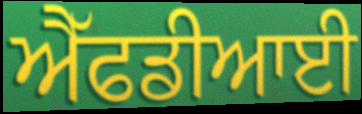
ਐੱਫਡੀਆਈ